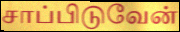
சாப்பிடுவேன்